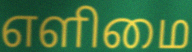
எளிமை